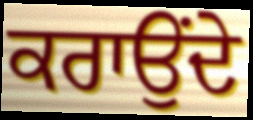
ਕਰਾਉਂਦੇ